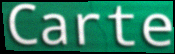
Carte